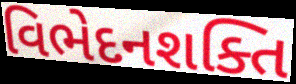
વિભેદનશક્તિ